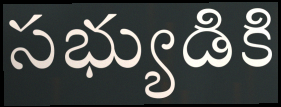
సభ్యుడికి